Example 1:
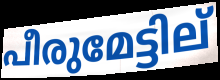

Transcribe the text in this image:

പീരുമേട്ടില്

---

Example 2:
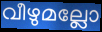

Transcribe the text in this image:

വീഴുമല്ലോ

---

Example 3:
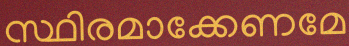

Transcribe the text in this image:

സ്ഥിരമാക്കേണമേ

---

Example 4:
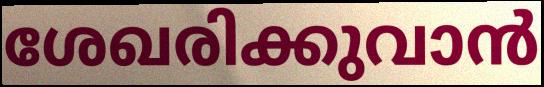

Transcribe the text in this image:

ശേഖരിക്കുവാൻ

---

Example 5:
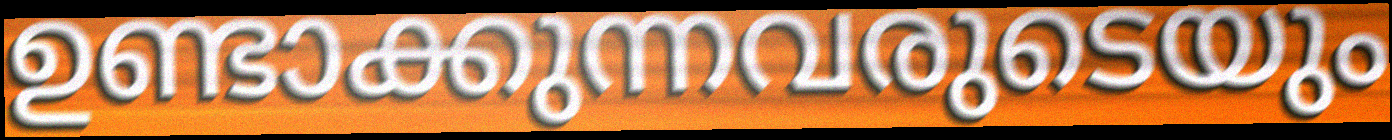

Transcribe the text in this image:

ഉണ്ടാക്കുന്നവരുടെയും